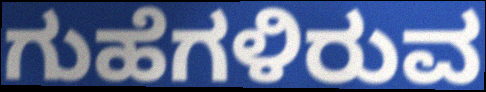
ಗುಹೆಗಳಿರುವ